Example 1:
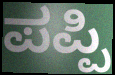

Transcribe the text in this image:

ಪಪ್ಪಿ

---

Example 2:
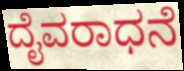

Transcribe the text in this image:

ದೈವರಾಧನೆ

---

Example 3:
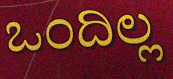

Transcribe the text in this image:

ಒಂದಿಲ್ಲ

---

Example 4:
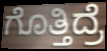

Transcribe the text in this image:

ಗೊತ್ತಿದ್ರೆ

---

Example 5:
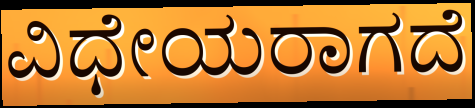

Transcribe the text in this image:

ವಿಧೇಯರಾಗದೆ